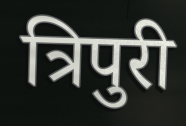
त्रिपुरी